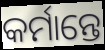
କର୍ମାନ୍ତେ